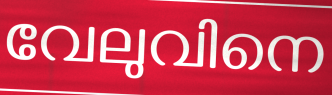
വേലുവിനെ